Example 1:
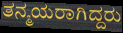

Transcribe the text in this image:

ತನ್ಮಯರಾಗಿದ್ದರು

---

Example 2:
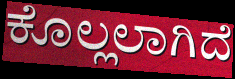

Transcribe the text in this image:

ಕೊಲ್ಲಲಾಗಿದೆ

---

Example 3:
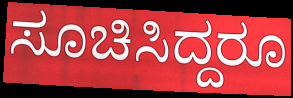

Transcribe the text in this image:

ಸೂಚಿಸಿದ್ದರೂ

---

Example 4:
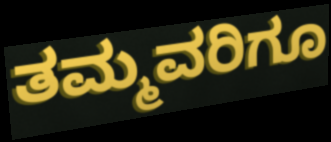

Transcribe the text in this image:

ತಮ್ಮವರಿಗೂ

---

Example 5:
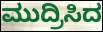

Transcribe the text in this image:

ಮುದ್ರಿಸಿದ